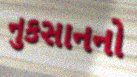
નુકસાનનો